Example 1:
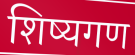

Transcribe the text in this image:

शिष्यगण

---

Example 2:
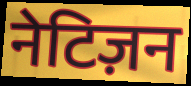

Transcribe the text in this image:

नेटिज़न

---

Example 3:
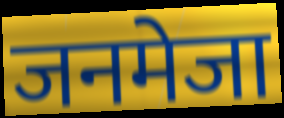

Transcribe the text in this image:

जनमेजा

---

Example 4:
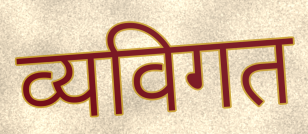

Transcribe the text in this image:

व्यविगत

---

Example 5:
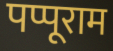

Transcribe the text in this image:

पप्पूराम